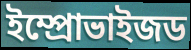
ইম্প্রোভাইজড